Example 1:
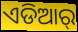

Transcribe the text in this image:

ଏଡିଆର୍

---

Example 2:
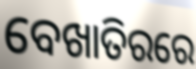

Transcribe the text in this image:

ବେଖାତିରରେ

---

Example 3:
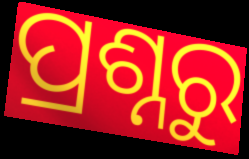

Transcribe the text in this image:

ପ୍ରଶ୍ନରୁ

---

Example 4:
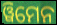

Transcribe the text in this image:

ୱିମେନ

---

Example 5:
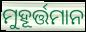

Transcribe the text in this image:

ମୁହୂର୍ତ୍ତମାନ